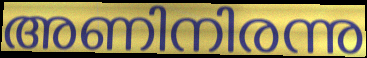
അണിനിരന്നു